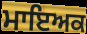
ਮਾਇਅਕ